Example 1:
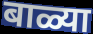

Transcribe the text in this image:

बाळ्या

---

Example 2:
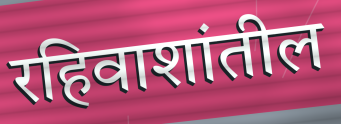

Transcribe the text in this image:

रहिवाशांतील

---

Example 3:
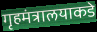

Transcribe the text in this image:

गृहमंत्रालयाकडे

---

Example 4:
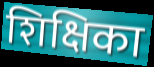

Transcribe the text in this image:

शिक्षिका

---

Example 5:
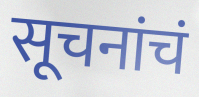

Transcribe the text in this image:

सूचनांचं